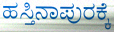
ಹಸ್ತಿನಾಪುರಕ್ಕೆ